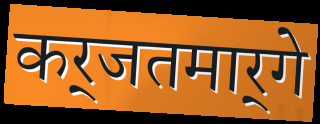
कर्जतमार्गे